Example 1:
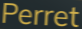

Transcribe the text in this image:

Perret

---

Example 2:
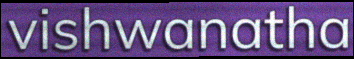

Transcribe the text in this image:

vishwanatha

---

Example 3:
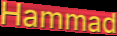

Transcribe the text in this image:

Hammad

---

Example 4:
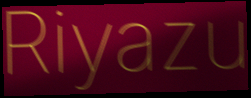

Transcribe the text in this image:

Riyazu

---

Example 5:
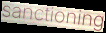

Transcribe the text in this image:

sanctioning